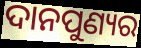
ଦାନପୁଣ୍ୟର